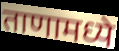
ताणामध्ये